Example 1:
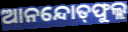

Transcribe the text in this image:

ଆନନ୍ଦୋତ୍‍ଫୁଲ୍ଲ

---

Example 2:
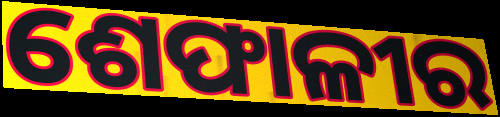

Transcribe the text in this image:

ଶେଫାଳୀର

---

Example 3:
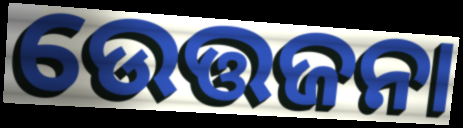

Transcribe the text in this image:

ଉେତ୍ତଜନା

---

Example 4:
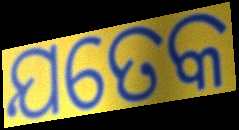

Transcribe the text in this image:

ଯତେକ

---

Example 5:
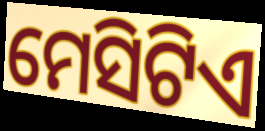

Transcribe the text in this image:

ମେସିଟିଏ